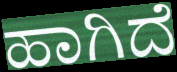
ಹಾಗಿದೆ